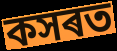
কসৰত